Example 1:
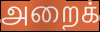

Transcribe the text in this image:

அறைக்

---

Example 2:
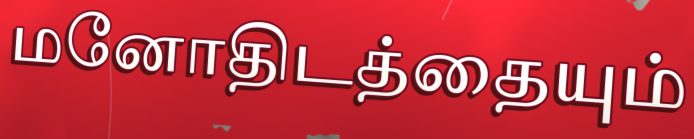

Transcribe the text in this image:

மனோதிடத்தையும்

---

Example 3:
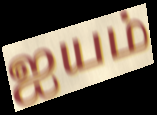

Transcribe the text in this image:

ஐயம்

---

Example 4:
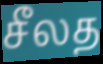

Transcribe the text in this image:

சீலத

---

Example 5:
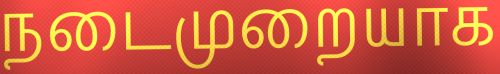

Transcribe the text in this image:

நடைமுறையாக